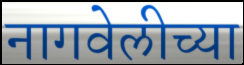
नागवेलीच्या